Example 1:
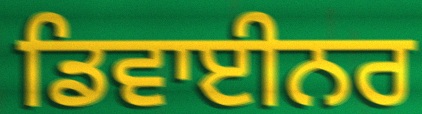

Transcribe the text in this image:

ਡਿਵਾਈਨਰ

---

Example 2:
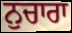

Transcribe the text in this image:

ਨੁਚਾਰਾ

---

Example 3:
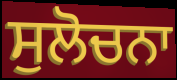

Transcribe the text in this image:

ਸੁਲੋਚਨਾ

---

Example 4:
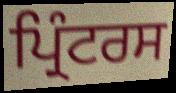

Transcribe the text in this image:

ਪ੍ਰਿੰਟਰਸ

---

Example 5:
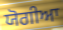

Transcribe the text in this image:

ਯੋਗੀਆ